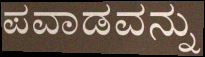
ಪವಾಡವನ್ನು